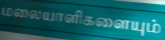
மலையாளிகளையும்